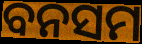
ବନସମ